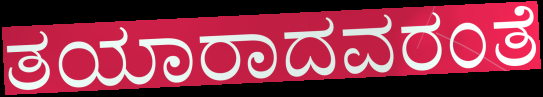
ತಯಾರಾದವರಂತೆ